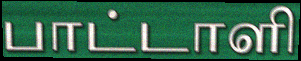
பாட்டாளி